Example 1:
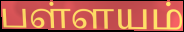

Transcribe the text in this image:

பள்ளயம்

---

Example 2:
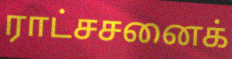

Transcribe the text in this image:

ராட்சசனைக்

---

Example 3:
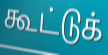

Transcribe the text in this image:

கூட்டுக்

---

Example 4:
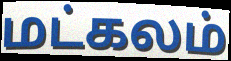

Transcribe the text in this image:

மட்கலம்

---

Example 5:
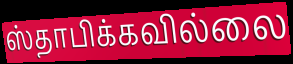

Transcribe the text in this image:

ஸ்தாபிக்கவில்லை